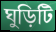
ঘুড়িটি